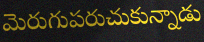
మెరుగుపరుచుకున్నాడు